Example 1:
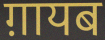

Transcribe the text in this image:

ग़ायब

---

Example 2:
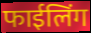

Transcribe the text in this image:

फाईलिंग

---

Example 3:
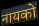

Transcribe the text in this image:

नायको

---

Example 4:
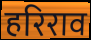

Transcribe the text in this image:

हरिराव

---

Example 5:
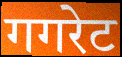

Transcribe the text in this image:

गगरेट